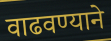
वाढवण्याने